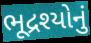
ભૂદ્રશ્યોનું